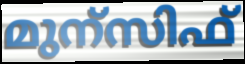
മുന്സിഫ്